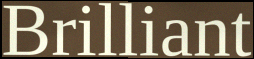
Brilliant